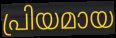
പ്രിയമായ